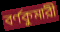
বর্ণকুমারী